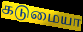
கடுமையா